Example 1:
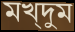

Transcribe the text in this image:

মখ্দুম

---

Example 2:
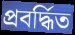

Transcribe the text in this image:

প্রবর্দ্ধিত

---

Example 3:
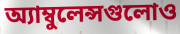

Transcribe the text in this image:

অ্যাম্বুলেন্সগুলোও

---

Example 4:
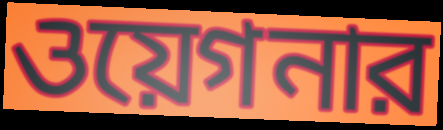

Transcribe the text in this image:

ওয়েগনার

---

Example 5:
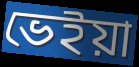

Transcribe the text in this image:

ভেইয়া